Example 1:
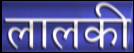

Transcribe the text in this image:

लालकी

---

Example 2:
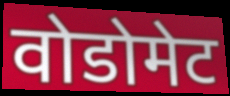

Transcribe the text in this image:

वोडोमेट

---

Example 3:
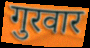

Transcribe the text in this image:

गुरवार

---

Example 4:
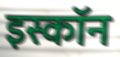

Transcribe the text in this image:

इस्कॉन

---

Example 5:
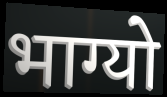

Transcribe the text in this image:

भाग्यो